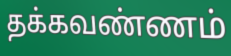
தக்கவண்ணம்